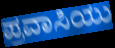
ಪ್ರವಾಸಿಯು